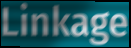
Linkage